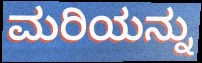
ಮರಿಯನ್ನು